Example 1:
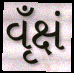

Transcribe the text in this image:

વૃઁક્ષં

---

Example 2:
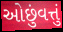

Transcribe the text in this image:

ઓછુંવત્તું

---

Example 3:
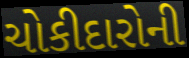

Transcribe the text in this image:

ચોકીદારોની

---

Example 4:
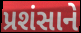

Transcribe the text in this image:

પ્રશંસાને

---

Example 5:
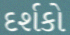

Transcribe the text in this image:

દર્શકો